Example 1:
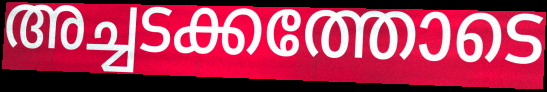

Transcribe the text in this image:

അച്ചടക്കത്തോടെ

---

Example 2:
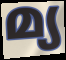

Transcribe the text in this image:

മ്യ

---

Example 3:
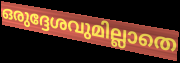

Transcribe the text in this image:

ഒരുദ്ദേശവുമില്ലാതെ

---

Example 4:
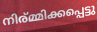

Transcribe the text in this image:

നിര്മ്മിക്കപ്പെട്ടു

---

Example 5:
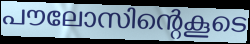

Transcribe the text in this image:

പൗലോസിന്റെകൂടെ